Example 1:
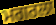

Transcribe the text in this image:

ਮਗਰਲਾ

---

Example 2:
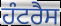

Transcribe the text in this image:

ਹੰਟਰੈਸ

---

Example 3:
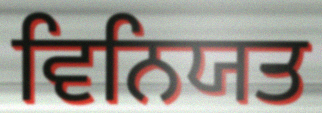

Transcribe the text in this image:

ਵਿਨਿਯਤ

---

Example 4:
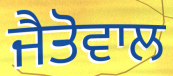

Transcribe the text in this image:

ਜੈਤੋਵਾਲ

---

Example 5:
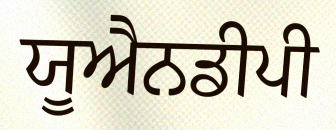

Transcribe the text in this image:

ਯੂਐਨਡੀਪੀ